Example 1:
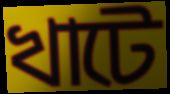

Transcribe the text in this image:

খাটে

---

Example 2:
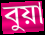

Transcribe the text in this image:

বুয়া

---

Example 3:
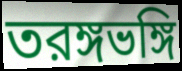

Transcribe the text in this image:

তরঙ্গভঙ্গি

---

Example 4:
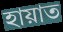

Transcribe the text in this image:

হায়াত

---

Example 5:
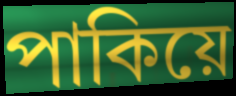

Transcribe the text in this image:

পাকিয়ে